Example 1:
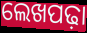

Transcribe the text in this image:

ଲେଖପଢ଼ା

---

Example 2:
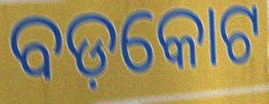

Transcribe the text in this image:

ବଡ଼କୋଟ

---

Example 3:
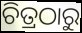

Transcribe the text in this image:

ଚିତ୍ରଠାରୁ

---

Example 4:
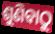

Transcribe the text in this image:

ଶୁଣିବାଠୁ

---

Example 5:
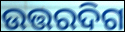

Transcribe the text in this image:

ଉତ୍ତରଦିଗ